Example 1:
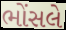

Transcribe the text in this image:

ભોંસલે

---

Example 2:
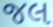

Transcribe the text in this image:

જલ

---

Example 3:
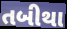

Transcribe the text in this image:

તબીથા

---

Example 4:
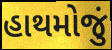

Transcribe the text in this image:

હાથમોજું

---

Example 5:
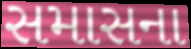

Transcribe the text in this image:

સમાસના